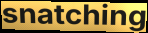
snatching